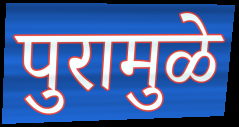
पुरामुळे